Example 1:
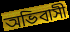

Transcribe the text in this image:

অভিবাসী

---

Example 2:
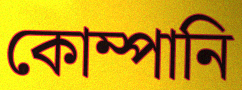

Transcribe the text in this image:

কোম্পানি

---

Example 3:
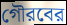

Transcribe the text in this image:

গৌরবের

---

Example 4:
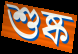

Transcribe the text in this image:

শুষ্ক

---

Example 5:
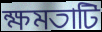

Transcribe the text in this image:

ক্ষমতাটি